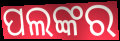
ପଲଙ୍କର